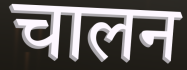
चालन